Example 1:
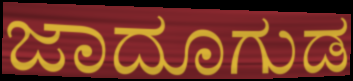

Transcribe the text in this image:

ಜಾದೂಗುಡ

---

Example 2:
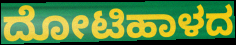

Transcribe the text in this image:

ದೋಟಿಹಾಳದ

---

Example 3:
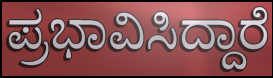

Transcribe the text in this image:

ಪ್ರಭಾವಿಸಿದ್ದಾರೆ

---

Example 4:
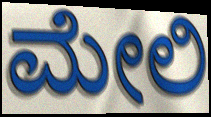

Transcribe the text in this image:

ಮೇಲಿ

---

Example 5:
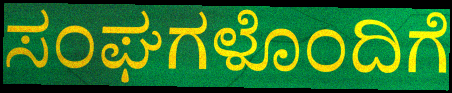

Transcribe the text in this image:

ಸಂಘಗಳೊಂದಿಗೆ